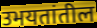
उभयतांतील